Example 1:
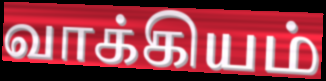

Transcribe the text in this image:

வாக்கியம்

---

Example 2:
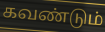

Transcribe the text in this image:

கவண்டும்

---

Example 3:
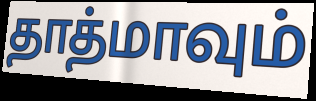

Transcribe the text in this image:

தாத்மாவும்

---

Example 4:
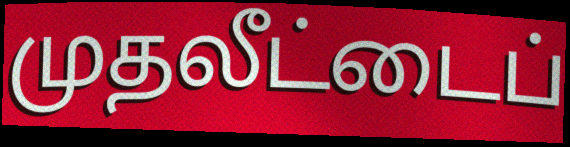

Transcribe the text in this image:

முதலீட்டைப்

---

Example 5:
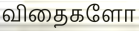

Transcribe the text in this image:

விதைகளோ